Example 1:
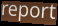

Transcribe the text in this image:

report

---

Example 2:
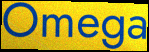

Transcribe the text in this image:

Omega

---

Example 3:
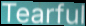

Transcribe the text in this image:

Tearful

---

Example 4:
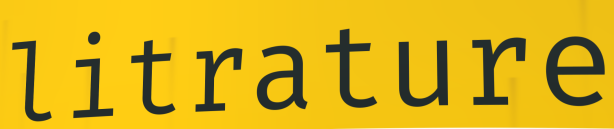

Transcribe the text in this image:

litrature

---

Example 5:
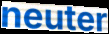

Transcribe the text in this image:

neuter